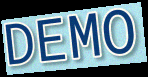
DEMO